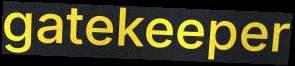
gatekeeper